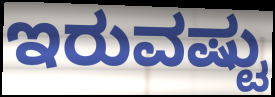
ಇರುವಷ್ಟು